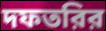
দফতরির